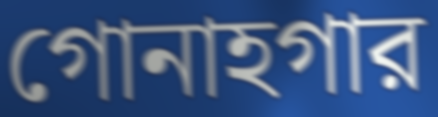
গোনাহগার